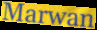
Marwan